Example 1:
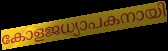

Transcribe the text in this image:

കോളജധ്യാപകനായി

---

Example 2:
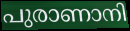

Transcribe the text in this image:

പുരാണാനി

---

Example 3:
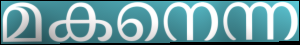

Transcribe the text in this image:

മകനെന്ന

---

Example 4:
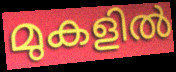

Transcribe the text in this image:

മുകളിൽ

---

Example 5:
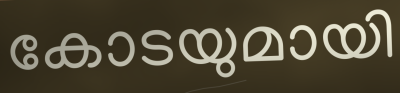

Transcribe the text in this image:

കോടയുമായി